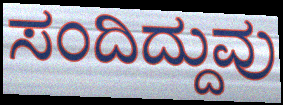
ಸಂದಿದ್ದುವು